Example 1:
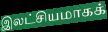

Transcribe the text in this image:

இலட்சியமாகக்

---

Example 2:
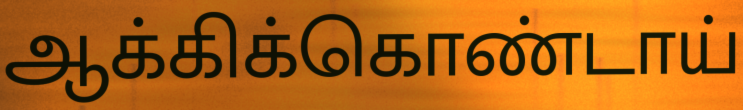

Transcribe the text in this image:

ஆக்கிக்கொண்டாய்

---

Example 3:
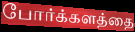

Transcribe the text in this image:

போர்க்களத்தை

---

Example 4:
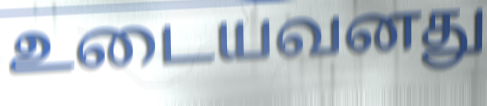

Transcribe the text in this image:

உடையவனது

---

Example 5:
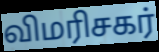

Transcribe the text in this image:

விமரிசகர்